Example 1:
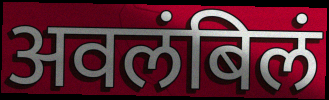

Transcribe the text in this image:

अवलंबिलं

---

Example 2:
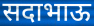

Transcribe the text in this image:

सदाभाऊ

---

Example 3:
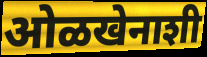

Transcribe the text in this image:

ओळखेनाशी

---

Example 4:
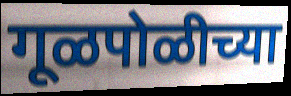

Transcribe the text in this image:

गूळपोळीच्या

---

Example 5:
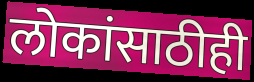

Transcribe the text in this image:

लोकांसाठीही